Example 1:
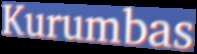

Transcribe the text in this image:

Kurumbas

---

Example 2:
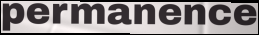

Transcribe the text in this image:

permanence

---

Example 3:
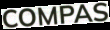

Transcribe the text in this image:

COMPAS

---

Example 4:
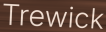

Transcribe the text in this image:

Trewick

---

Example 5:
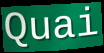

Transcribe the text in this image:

Quai